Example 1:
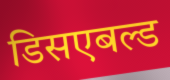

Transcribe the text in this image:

डिसएबल्ड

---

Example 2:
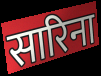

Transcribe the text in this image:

सारिना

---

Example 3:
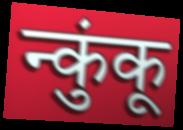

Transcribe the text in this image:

न्कुंकू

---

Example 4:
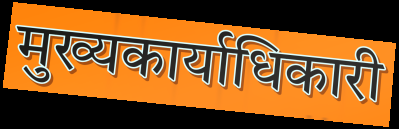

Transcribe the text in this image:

मुख्यकार्याधिकारी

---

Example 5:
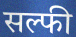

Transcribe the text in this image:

सल्फी